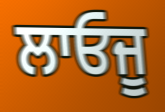
ਲਾਓਜੂ